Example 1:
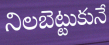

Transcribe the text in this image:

నిలబెట్టుకునే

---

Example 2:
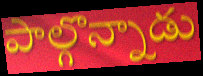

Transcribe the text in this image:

పాల్గొన్నాడు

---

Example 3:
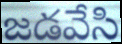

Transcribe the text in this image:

జడవేసి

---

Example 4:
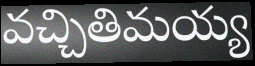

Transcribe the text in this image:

వచ్చితిమయ్య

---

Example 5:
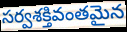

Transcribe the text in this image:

సర్వశక్తివంతమైన